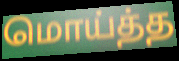
மொய்த்த